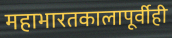
महाभारतकालापूर्वीही